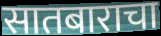
सातबाराचा